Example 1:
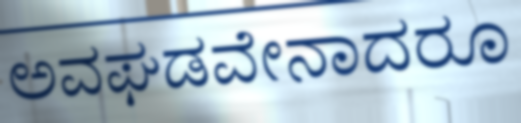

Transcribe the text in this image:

ಅವಘಡವೇನಾದರೂ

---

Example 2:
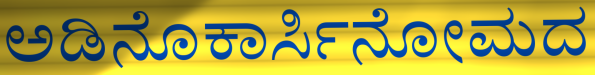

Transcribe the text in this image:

ಅಡಿನೊಕಾರ್ಸಿನೋಮದ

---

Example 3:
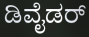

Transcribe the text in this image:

ಡಿವೈಡರ್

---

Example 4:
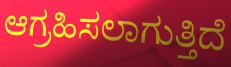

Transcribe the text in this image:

ಆಗ್ರಹಿಸಲಾಗುತ್ತಿದೆ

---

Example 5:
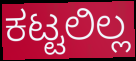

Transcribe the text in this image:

ಕಟ್ಟಲಿಲ್ಲ